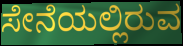
ಸೇನೆಯಲ್ಲಿರುವ